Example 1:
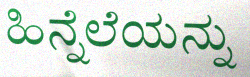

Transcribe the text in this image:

ಹಿನ್ನೆಲೆಯನ್ನು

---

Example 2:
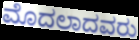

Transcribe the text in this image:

ಮೊದಲಾದವರು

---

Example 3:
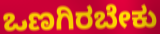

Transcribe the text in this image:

ಒಣಗಿರಬೇಕು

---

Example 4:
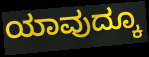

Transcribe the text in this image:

ಯಾವುದ್ಕೂ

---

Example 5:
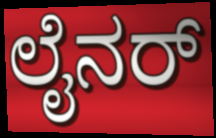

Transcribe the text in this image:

ಲೈನರ್